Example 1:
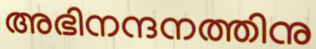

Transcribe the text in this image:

അഭിനന്ദനത്തിനു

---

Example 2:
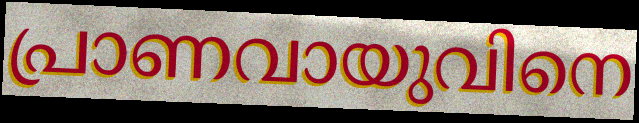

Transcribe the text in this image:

പ്രാണവായുവിനെ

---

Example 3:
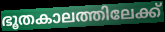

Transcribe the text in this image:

ഭൂതകാലത്തിലേക്ക്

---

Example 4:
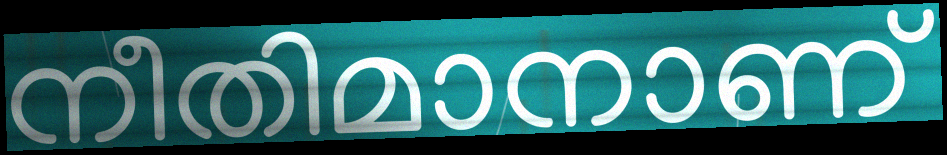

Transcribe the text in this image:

നീതിമാനാണ്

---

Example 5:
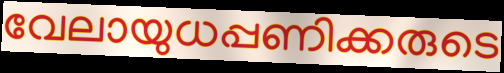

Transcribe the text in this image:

വേലായുധപ്പണിക്കരുടെ